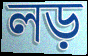
লড়